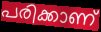
പരിക്കാണ്